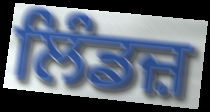
ਲਿੰਡਜ਼